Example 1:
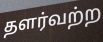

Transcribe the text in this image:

தளர்வற்ற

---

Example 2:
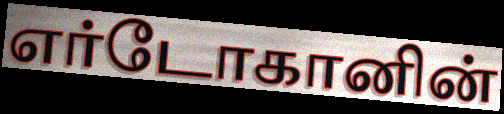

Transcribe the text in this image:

எர்டோகானின்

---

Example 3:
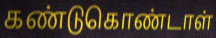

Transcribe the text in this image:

கண்டுகொண்டாள்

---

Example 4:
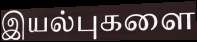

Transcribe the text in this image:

இயல்புகளை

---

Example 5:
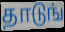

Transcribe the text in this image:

தாடுங்